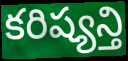
కరిష్యన్తి